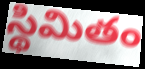
స్థిమితం